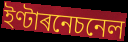
ইণ্টাৰনেচনেল